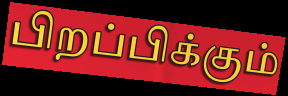
பிறப்பிக்கும்